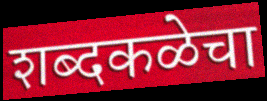
शब्दकळेचा